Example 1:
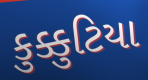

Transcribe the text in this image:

કુક્કુટિયા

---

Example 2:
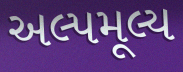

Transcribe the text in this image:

અલ્પમૂલ્ય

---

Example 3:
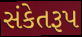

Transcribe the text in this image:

સંકેતરૂપ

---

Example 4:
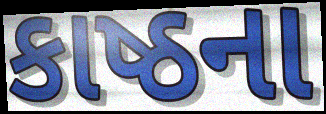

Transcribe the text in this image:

કાષ્ઠના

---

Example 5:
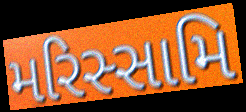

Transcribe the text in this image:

મરિસ્સામિ